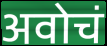
अवोचं